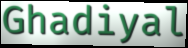
Ghadiyal